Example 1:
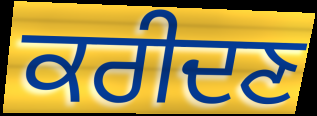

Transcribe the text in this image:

ਕਰੀਦਣ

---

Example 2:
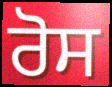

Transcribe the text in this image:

ਰੋਸ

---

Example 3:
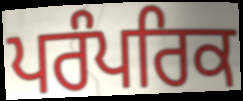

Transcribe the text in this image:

ਪਰੰਪਰਿਕ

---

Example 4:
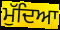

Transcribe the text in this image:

ਮੁੱਦਿਆ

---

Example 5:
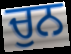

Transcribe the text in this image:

ਚੁਨ